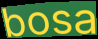
bosa